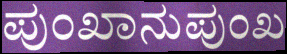
ಪುಂಖಾನುಪುಂಖ